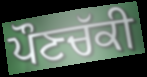
ਪੌਣਚੱਕੀ